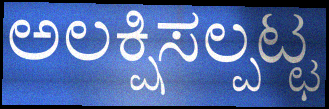
ಅಲಕ್ಷಿಸಲ್ಪಟ್ಟ